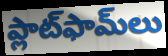
ప్లాట్‌ఫామ్‌లు